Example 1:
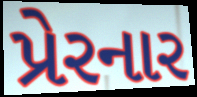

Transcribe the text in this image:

પ્રેરનાર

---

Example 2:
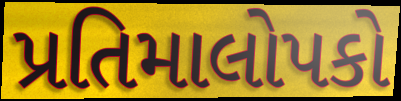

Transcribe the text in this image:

પ્રતિમાલોપકો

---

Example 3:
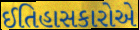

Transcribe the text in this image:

ઈતિહાસકારોએ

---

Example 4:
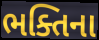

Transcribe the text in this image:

ભક્તિના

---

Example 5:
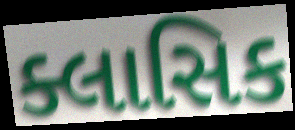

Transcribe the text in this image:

ક્લાસિક